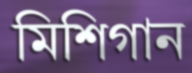
মিশিগান